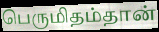
பெருமிதம்தான்